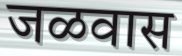
जळवास